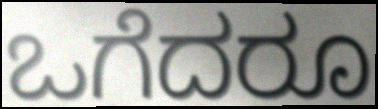
ಒಗೆದರೂ